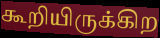
கூறியிருக்கிற